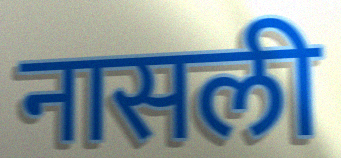
नासली